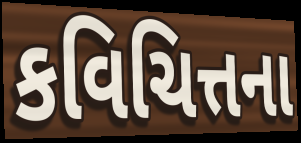
કવિચિત્તના